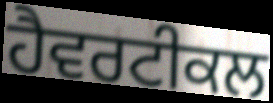
ਹੈਵਰਟੀਕਲ